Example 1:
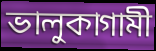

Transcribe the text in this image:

ভালুকাগামী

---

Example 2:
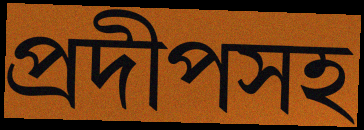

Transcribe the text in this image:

প্রদীপসহ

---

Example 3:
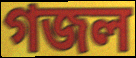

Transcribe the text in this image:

গজল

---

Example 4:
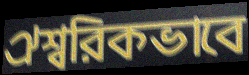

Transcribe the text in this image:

ঐশ্বরিকভাবে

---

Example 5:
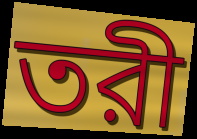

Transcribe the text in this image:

তরী